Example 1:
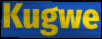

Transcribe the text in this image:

Kugwe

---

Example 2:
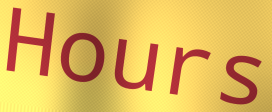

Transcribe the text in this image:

Hours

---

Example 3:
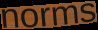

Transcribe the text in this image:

norms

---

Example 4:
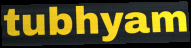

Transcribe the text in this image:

tubhyam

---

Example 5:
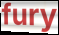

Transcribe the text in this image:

fury